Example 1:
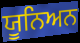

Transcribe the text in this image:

ਯੂਨਿਅਨ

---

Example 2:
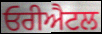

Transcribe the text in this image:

ਓਰੀਐਟਲ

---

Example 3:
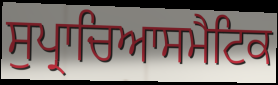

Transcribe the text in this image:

ਸੁਪ੍ਰਾਚਿਆਸਮੈਟਿਕ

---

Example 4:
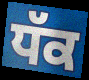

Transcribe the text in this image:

ਧੱਕ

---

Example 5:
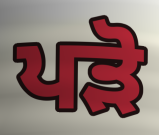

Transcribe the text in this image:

ਪੜੋ